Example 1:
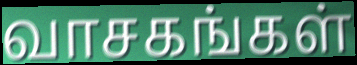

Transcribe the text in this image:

வாசகங்கள்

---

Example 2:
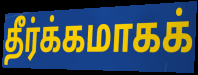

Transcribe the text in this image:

தீர்க்கமாகக்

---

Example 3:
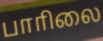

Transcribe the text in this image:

பாரிலை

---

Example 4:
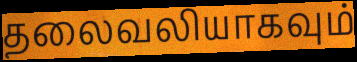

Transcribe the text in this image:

தலைவலியாகவும்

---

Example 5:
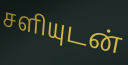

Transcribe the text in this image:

சளியுடன்